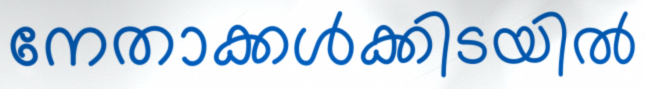
നേതാക്കൾക്കിടയിൽ